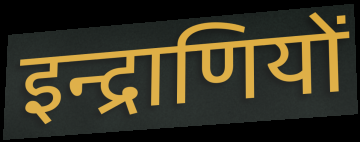
इन्द्राणियों